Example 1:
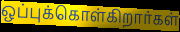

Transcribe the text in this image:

ஒப்புக்கொள்கிறார்கள்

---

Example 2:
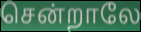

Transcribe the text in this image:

சென்றாலே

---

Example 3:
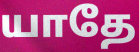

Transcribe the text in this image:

யாதே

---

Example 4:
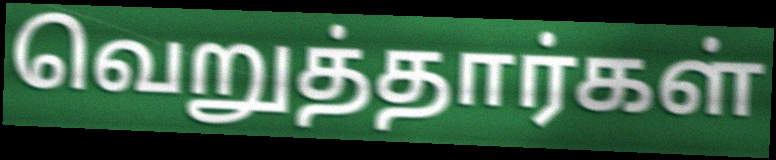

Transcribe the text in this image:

வெறுத்தார்கள்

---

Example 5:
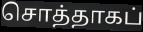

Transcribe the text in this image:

சொத்தாகப்